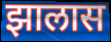
झालास